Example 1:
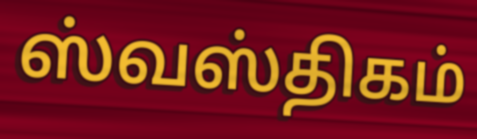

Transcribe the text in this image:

ஸ்வஸ்திகம்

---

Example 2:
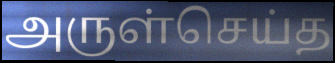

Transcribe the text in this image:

அருள்செய்த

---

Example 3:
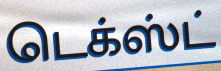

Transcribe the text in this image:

டெக்ஸ்ட்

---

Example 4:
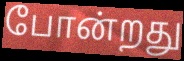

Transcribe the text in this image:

போன்றது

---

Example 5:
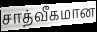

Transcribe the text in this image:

சாத்வீகமான